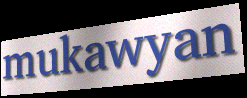
mukawyan